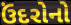
ઉંદરોનો